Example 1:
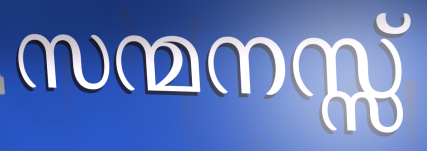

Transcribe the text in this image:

സന്മനസ്സ്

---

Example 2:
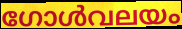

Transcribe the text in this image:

ഗോൾവലയം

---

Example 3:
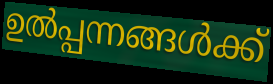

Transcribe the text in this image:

ഉൽപ്പന്നങ്ങൾക്ക്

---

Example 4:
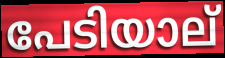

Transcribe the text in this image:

പേടിയാല്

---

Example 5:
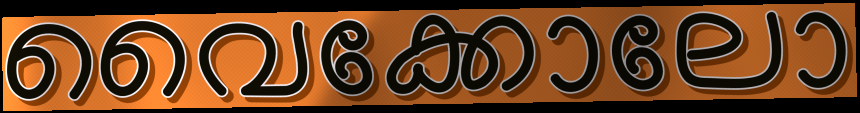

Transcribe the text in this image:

വൈക്കോലോ